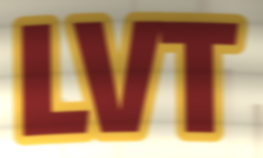
LVT